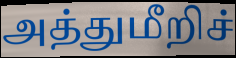
அத்துமீறிச்